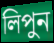
লিপুন